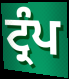
ਟ੍ਰੰਪ